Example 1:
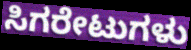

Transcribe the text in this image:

ಸಿಗರೇಟುಗಳು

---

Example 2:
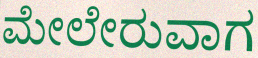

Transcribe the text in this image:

ಮೇಲೇರುವಾಗ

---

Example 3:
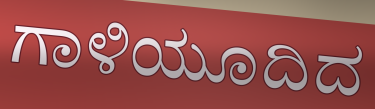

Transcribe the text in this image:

ಗಾಳಿಯೂದಿದ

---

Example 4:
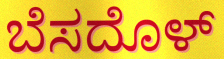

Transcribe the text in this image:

ಬೆಸದೊಳ್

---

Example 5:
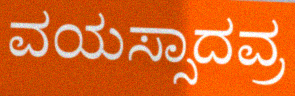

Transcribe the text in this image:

ವಯಸ್ಸಾದವ್ರ